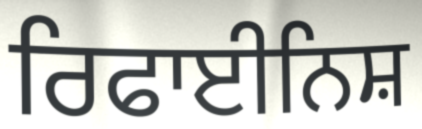
ਰਿਫਾਈਨਿਸ਼